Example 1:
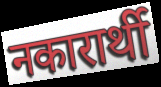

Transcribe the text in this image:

नकारार्थी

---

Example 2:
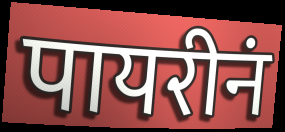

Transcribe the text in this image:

पायरीनं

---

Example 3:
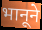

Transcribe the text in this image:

भानूने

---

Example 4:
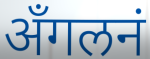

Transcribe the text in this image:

अँगलनं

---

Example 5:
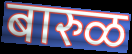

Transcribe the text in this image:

बारुळ